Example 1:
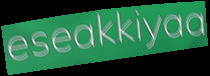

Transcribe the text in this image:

eseakkiyaa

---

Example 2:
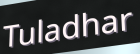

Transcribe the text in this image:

Tuladhar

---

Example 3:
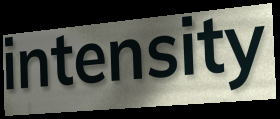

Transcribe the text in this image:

intensity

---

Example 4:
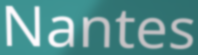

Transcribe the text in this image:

Nantes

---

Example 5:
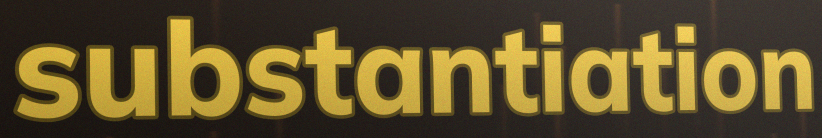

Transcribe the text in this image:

substantiation